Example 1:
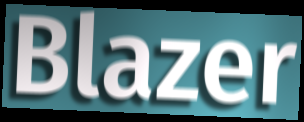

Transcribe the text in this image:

Blazer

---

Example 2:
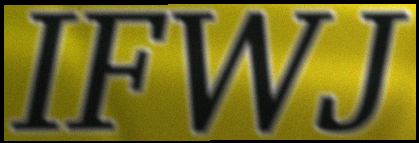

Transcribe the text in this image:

IFWJ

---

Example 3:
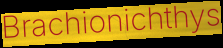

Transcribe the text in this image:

Brachionichthys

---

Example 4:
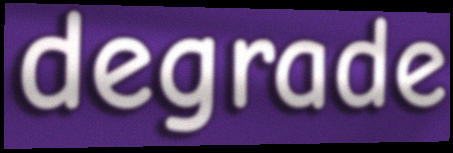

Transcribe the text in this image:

degrade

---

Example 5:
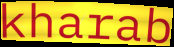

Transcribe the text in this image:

kharab